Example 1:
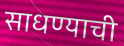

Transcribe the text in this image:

साधण्याची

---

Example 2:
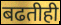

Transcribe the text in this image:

बढतीही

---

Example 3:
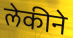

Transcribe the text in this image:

लेकीने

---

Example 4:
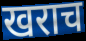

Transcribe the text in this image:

खराच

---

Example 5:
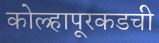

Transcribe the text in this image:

कोल्हापूरकडची